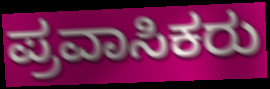
ಪ್ರವಾಸಿಕರು